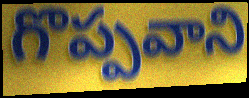
గొప్పవాని